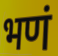
भणं